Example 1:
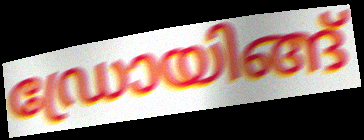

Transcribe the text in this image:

ഡ്രോയിങ്ങ്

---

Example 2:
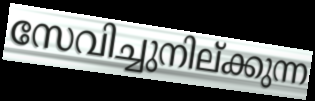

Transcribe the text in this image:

സേവിച്ചുനില്ക്കുന്ന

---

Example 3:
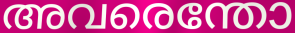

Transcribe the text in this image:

അവരെന്തോ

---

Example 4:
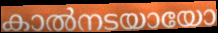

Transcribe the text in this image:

കാൽനടയായോ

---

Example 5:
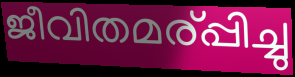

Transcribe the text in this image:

ജീവിതമര്പ്പിച്ചു